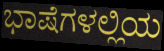
ಭಾಷೆಗಳಲ್ಲಿಯ